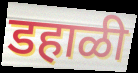
डहाळी